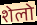
शेलो